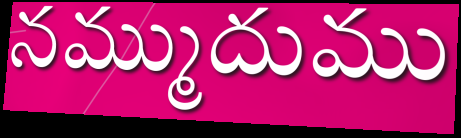
నమ్ముదుము